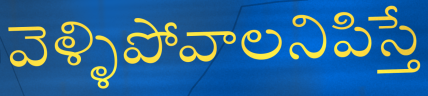
వెళ్ళిపోవాలనిపిస్తే